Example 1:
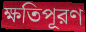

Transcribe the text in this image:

ক্ষতিপূরণ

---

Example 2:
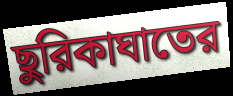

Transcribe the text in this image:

ছুরিকাঘাতের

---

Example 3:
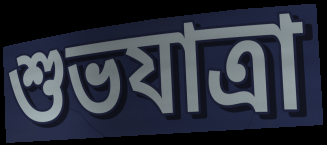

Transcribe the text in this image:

শুভযাত্রা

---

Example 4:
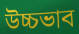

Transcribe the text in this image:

উচ্চভাব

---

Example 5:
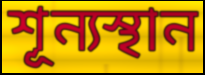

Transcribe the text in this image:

শূন্যস্থান